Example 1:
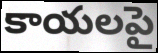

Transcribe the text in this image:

కాయలపై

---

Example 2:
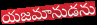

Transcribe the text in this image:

యజమానుడను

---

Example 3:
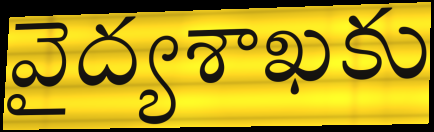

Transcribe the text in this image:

వైద్యశాఖకు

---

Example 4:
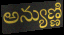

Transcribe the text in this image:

అన్యుణ్ణి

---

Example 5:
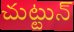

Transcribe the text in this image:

చుట్టున్